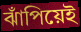
ঝাঁপিয়েই